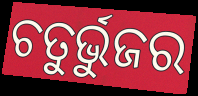
ଚତୁର୍ଭୁଜର